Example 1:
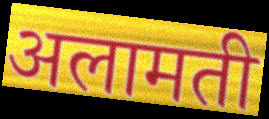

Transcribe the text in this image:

अलामती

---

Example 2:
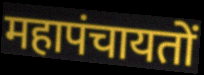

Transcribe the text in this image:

महापंचायतों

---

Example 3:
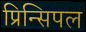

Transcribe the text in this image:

प्रिन्सिपल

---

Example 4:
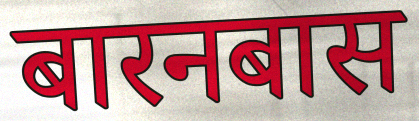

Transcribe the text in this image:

बारनबास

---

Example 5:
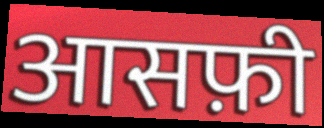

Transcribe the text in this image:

आसफ़ी